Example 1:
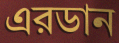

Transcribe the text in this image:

এরডান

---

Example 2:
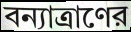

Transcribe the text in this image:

বন্যাত্রাণের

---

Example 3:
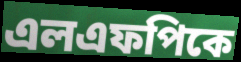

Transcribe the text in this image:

এলএফপিকে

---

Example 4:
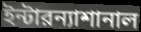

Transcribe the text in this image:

ইন্টারন্যাশানাল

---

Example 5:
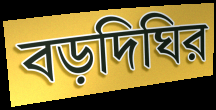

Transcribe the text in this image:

বড়দিঘির